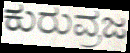
ಕುರುವ್ರಜ